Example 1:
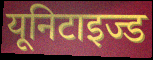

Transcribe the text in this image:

यूनिटाइज्ड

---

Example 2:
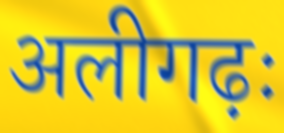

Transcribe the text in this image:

अलीगढ़ः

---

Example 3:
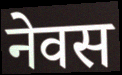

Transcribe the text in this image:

नेवस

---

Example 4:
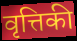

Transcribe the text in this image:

वृत्तिकी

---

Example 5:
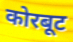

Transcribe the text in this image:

कोरबूट